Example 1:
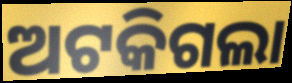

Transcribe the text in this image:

ଅଟକିଗଲା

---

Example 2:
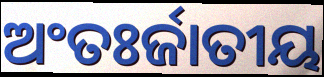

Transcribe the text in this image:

ଅଂତଃର୍ଜାତୀୟ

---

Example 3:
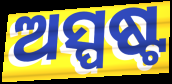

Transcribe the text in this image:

ଅସ୍ପଷ୍ଟ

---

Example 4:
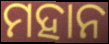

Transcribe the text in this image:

ମହାନ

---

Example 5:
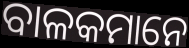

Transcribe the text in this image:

ବାଳକମାନେ